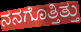
ನನಗೊತ್ತಿತ್ತು